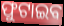
ଫୁଟାଇବ